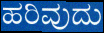
ಹರಿವುದು